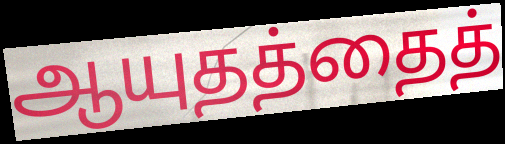
ஆயுதத்தைத்